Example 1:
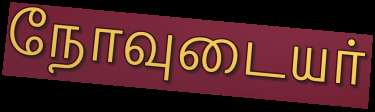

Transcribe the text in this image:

நோவுடையர்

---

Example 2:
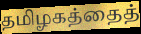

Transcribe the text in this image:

தமிழகத்தைத்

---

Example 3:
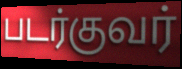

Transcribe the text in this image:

படர்குவர்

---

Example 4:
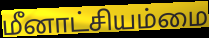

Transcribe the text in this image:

மீனாட்சியம்மை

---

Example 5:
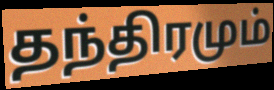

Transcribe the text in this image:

தந்திரமும்